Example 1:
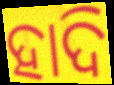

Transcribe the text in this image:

ହାଦି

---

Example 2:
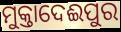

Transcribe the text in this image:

ମୁକ୍ତାଦେଈପୁର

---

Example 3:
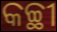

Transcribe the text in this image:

କଚ୍ଛୀ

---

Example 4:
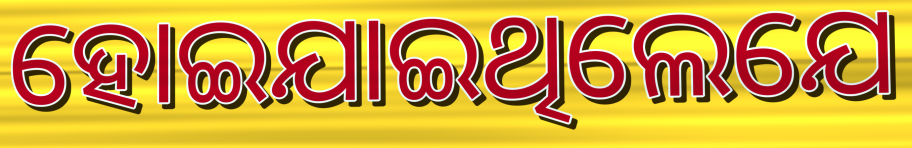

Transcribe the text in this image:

ହୋଇଯାଇଥିଲେଯେ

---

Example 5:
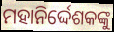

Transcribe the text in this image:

ମହାନିର୍ଦ୍ଦେଶକଙ୍କୁ